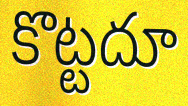
కొట్టదూ